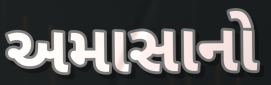
અમાસાનો